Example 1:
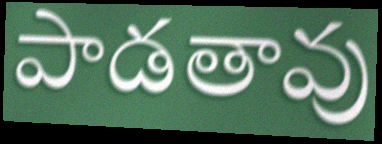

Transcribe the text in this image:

పాడతావు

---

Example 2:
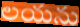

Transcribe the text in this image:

లయను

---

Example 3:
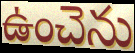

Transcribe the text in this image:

ఉంచెను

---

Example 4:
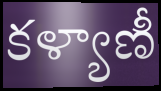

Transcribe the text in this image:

కళ్యాణీ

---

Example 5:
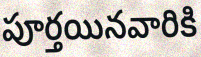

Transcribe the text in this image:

పూర్తయినవారికి